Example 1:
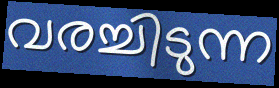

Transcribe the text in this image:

വരച്ചിടുന്ന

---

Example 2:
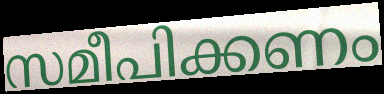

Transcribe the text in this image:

സമീപിക്കണം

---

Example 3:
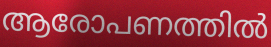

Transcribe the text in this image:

ആരോപണത്തിൽ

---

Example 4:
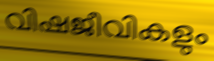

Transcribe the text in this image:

വിഷജീവികളും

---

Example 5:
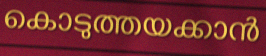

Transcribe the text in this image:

കൊടുത്തയക്കാൻ